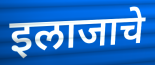
इलाजाचे